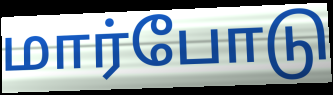
மார்போடு